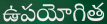
ఉపయోగిత